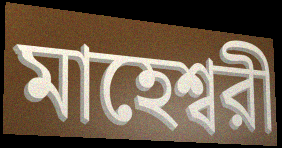
মাহেশ্বরী